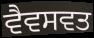
ਵੈਵਸਵਤ